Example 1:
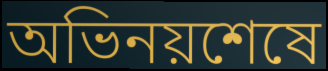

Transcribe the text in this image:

অভিনয়শেষে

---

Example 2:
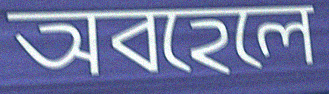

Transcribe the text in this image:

অবহেলে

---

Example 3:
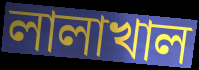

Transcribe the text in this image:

লালাখাল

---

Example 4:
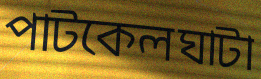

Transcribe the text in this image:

পাটকেলঘাটা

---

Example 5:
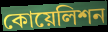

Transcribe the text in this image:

কোয়েলিশন